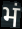
भं